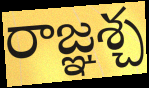
రాజ్ఞశ్చ